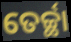
ତେର୍ଚ୍ଛା